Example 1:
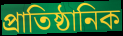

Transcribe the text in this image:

প্রাতিষ্ঠানিক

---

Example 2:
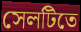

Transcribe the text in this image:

সেলটিতে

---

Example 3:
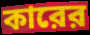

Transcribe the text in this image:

কারের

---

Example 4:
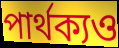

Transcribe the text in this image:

পার্থক্যও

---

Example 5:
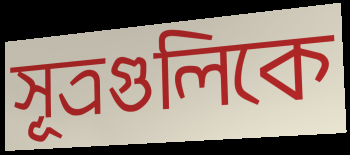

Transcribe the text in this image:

সূত্রগুলিকে